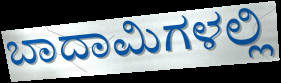
ಬಾದಾಮಿಗಳಲ್ಲಿ